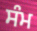
ਸੰਮ